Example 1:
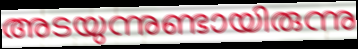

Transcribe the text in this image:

അടയുന്നുണ്ടായിരുന്നു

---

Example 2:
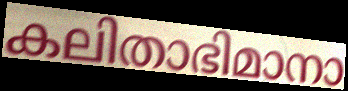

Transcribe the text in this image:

കലിതാഭിമാനാ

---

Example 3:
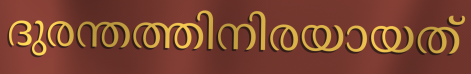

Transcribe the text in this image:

ദുരന്തത്തിനിരയായത്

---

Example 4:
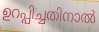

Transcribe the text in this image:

ഉറപ്പിച്ചതിനാൽ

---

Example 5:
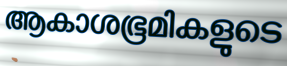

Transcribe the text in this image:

ആകാശഭൂമികളുടെ